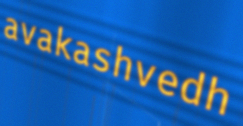
avakashvedh